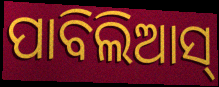
ପାବିଲିଆସ୍